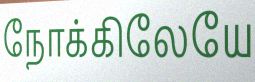
நோக்கிலேயே